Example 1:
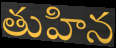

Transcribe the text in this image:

తుహిన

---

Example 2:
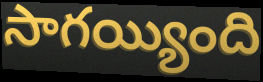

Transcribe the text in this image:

సాగయ్యింది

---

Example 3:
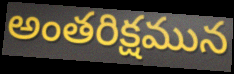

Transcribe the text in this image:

అంతరిక్షమున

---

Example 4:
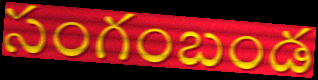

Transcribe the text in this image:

సంగంబండ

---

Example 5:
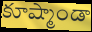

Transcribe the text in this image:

కూష్మాండా